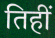
तिहीं